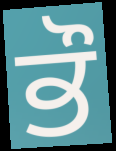
ਭੌ